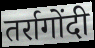
तर्रागोंदी